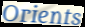
Orients